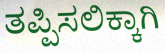
ತಪ್ಪಿಸಲಿಕ್ಕಾಗಿ